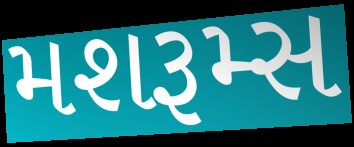
મશરૂમ્સ